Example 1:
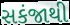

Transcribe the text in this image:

સકંજાથી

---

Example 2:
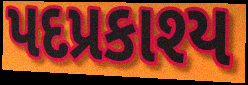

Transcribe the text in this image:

પદપ્રકાશ્ય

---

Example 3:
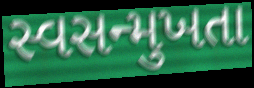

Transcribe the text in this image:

સ્વસન્મુખતા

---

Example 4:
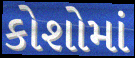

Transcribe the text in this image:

કોશોમાં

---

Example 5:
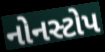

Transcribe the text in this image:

નોનસ્ટોપ